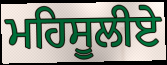
ਮਹਿਸੂਲੀਏ